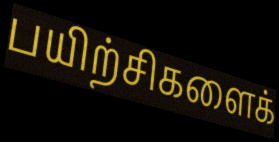
பயிற்சிகளைக்